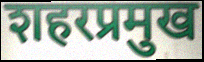
शहरप्रमुख